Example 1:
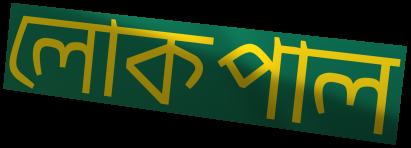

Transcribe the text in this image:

লোকপাল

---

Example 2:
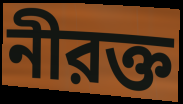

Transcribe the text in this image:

নীরক্ত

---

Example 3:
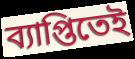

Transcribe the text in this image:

ব্যাপ্তিতেই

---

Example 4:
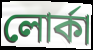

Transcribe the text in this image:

লোর্কা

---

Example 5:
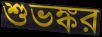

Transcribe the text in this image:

শুভঙ্কর